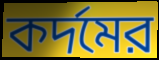
কর্দমের